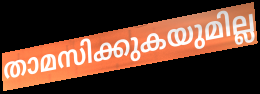
താമസിക്കുകയുമില്ല